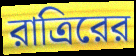
রাত্রিরের